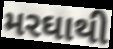
મરઘાથી